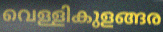
വെള്ളികുളങ്ങര